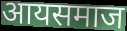
आयसमाज